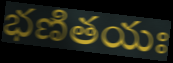
భణితయః